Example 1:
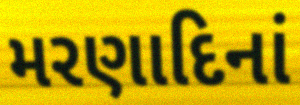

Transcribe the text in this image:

મરણાદિનાં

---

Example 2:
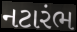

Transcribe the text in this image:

નટારંભ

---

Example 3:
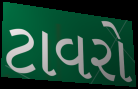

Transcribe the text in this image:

ટાવરો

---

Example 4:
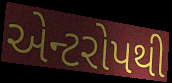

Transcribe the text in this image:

એન્ટરોપથી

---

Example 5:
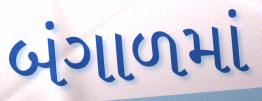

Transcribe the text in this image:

બંગાળમાં